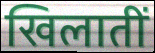
खिलातीं